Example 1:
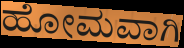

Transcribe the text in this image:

ಹೋಮವಾಗಿ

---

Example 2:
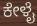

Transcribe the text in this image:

ಕೇಳೈ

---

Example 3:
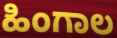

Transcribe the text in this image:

ಹಿಂಗಾಲ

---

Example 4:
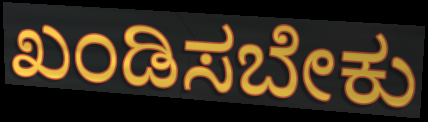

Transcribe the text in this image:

ಖಂಡಿಸಬೇಕು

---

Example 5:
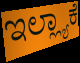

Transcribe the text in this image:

ಇಲ್ಲ್ಯಾಕೆ